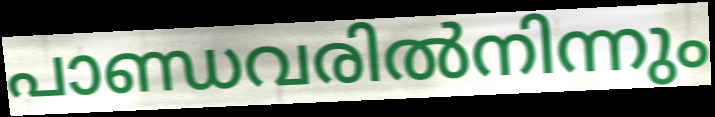
പാണ്ഡവരിൽനിന്നും